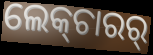
ଲେକ୍‍ଚାରର୍